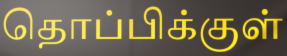
தொப்பிக்குள்